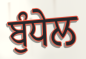
ਬੁੰਧੇਲ